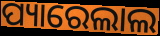
ପ୍ୟାରେଲାଲ